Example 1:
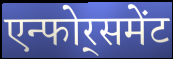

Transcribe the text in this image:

एन्फोर्समेंट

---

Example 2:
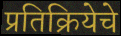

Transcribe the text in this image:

प्रतिक्रियेचे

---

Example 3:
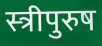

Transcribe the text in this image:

स्त्रीपुरुष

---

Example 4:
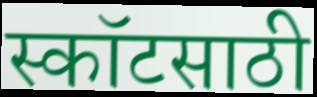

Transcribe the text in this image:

स्कॉटसाठी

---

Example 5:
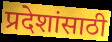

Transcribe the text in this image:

प्रदेशांसाठी